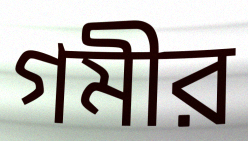
গমীর